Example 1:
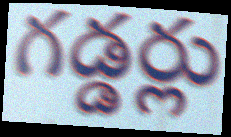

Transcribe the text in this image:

గడ్డర్లు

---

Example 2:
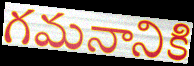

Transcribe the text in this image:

గమనానికి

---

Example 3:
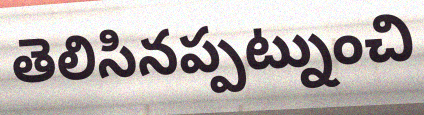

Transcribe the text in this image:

తెలిసినప్పట్నుంచి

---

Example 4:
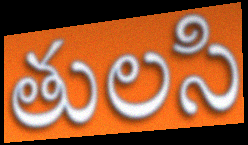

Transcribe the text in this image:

తులసి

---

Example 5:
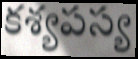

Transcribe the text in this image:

కశ్యపస్య